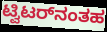
ಟ್ವಿಟರ್‌ನಂತಹ